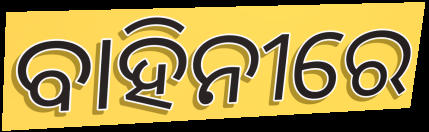
ବାହିନୀରେ